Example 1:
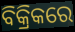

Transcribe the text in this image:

ବିକ୍ରିକରେ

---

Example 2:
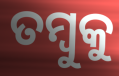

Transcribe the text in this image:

ତମ୍ବୁକୁ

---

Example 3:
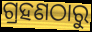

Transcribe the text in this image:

ଗ୍ରହଣଠାରୁ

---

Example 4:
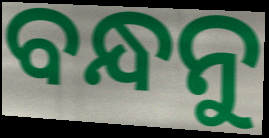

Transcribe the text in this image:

ବନ୍ଧନୁ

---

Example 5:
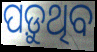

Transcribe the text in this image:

ପଡ଼ୁଥିବ